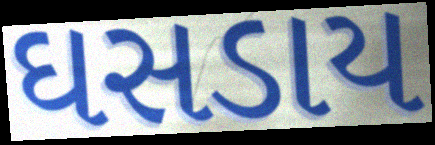
ઘસડાય